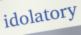
idolatory